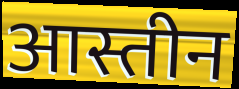
आस्तीन